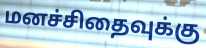
மனச்சிதைவுக்கு